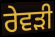
ਰੇਵੜੀ